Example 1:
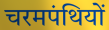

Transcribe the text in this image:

चरमपंथियों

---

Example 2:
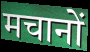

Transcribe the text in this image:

मचानों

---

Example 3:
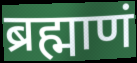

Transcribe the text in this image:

ब्रह्माणं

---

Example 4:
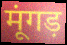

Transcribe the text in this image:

मूंगड़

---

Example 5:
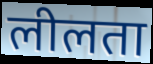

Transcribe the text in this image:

लीलता